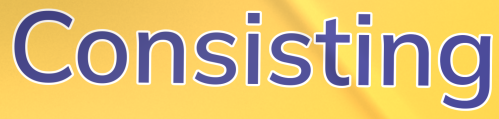
Consisting